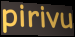
pirivu